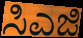
ಸಿಎಜಿ